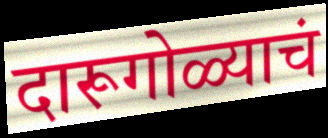
दारूगोळ्याचं